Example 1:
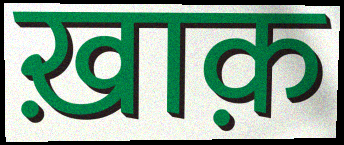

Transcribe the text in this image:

ख़ाक़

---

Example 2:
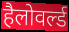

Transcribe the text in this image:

हैलोवर्ल्ड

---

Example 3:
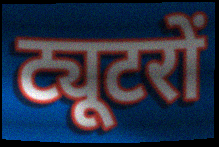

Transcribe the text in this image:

ट्यूटरों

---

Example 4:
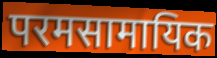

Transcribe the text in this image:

परमसामायिक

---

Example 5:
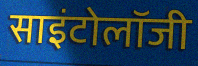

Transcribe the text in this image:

साइंटोलॉजी